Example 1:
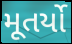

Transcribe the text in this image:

મૂતર્યો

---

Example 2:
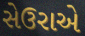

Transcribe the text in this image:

સેઉરાએ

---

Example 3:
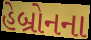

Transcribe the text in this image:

હેબ્રોનના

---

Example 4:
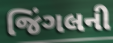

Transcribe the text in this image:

જિંગલની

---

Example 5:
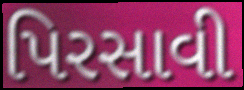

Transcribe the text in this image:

પિરસાવી